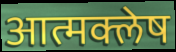
आत्मक्लेष